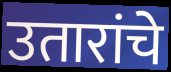
उतारांचे